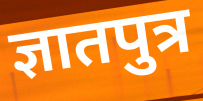
ज्ञातपुत्र